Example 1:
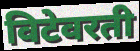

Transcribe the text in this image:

विटेवरती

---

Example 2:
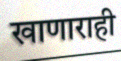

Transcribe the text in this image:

खाणाराही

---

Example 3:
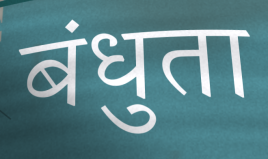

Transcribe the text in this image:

बंधुता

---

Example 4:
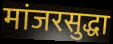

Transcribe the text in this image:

मांजरसुद्धा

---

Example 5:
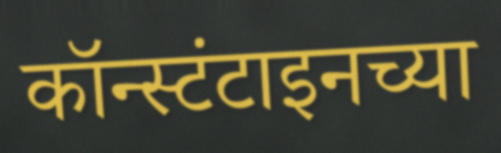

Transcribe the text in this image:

कॉन्स्टंटाइनच्या